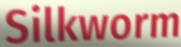
Silkworm